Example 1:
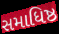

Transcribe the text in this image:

સમાધિષ્ઠ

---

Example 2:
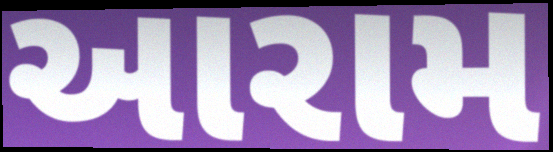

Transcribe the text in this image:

આરામ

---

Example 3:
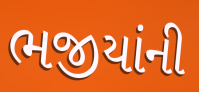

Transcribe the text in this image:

ભજીયાંની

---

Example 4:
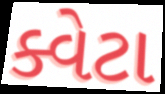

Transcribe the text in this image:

ક્વેટા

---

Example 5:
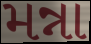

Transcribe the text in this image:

મન્ના